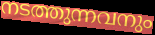
നടത്തുന്നവനും